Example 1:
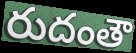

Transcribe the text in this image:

రుదంతౌ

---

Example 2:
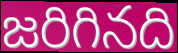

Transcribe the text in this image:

జరిగినది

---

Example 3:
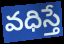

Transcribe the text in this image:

వధిస్తే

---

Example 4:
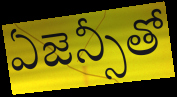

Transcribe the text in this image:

ఏజెన్సీతో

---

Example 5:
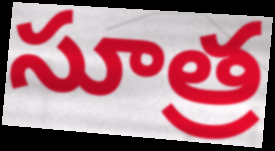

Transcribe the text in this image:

సూత్ర